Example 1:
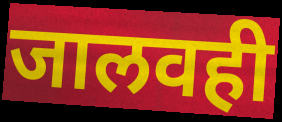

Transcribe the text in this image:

जालवही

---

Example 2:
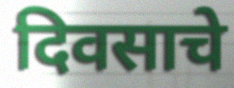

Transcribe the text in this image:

दिवसाचे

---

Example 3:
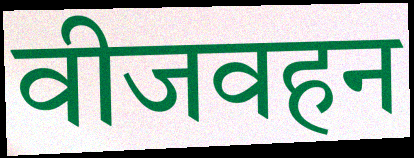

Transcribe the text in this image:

वीजवहन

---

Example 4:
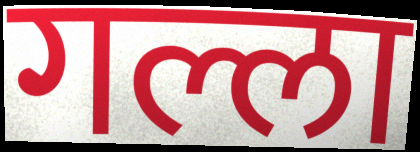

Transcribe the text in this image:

गल्ला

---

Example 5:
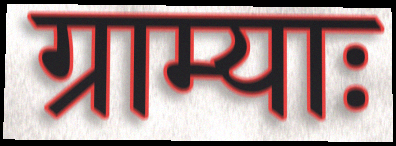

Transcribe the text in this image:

ग्राम्याः